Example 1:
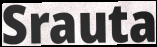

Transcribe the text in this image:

Srauta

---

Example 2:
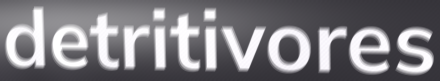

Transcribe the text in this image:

detritivores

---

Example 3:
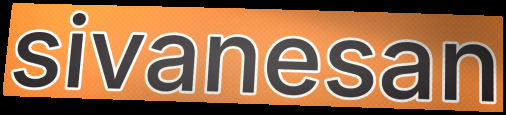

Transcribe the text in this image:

sivanesan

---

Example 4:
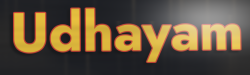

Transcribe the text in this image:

Udhayam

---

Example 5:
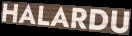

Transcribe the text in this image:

HALARDU